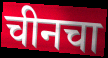
चीनचा